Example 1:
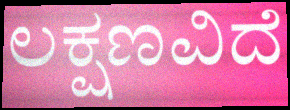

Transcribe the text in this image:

ಲಕ್ಷಣವಿದೆ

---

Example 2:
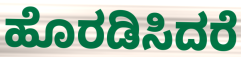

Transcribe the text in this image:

ಹೊರಡಿಸಿದರೆ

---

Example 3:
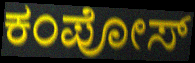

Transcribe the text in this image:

ಕಂಪೋಸ್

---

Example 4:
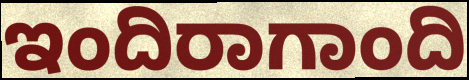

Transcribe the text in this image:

ಇಂದಿರಾಗಾಂದಿ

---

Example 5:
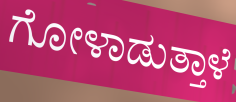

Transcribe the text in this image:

ಗೋಳಾಡುತ್ತಾಳೆ